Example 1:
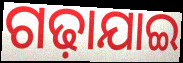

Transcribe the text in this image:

ଗଢ଼ାଯାଇ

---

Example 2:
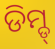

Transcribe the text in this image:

ଡିମ୍ଡ୍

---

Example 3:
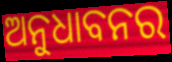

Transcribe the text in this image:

ଅନୁଧାବନର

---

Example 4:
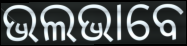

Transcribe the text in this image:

ଭଲଭାବେ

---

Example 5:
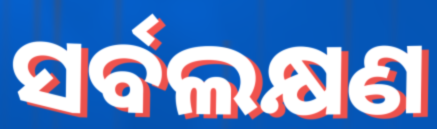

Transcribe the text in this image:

ସର୍ବଲକ୍ଷଣ